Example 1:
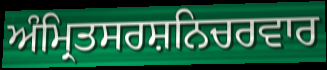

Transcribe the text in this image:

ਅੰਮ੍ਰਿਤਸਰਸ਼ਨਿਚਰਵਾਰ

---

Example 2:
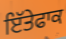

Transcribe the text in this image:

ਇੱਤੇਫਾਕ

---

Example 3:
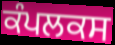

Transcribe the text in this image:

ਕੰਪਲਕਸ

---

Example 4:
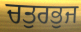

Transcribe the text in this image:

ਚਤੁਰਭੁਜ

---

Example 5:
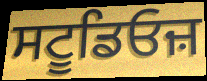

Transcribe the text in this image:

ਸਟੂਡਿਓਜ਼